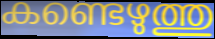
കണ്ടെഴുത്തു